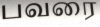
பவரை